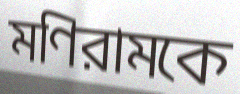
মণিরামকে